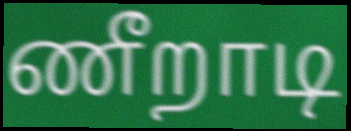
ணீறாடி